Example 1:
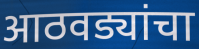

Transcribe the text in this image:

आठवड्यांचा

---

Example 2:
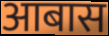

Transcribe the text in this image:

आबास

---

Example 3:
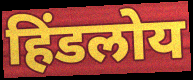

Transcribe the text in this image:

हिंडलोय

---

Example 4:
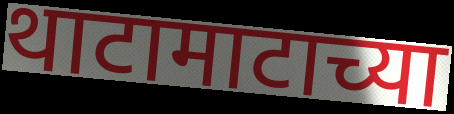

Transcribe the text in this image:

थाटामाटाच्या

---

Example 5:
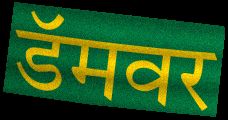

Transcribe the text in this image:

डॅमवर